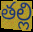
తల్లి